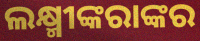
ଲକ୍ଷ୍ମୀଙ୍କରାଙ୍କର